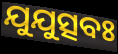
ଯୁଯୁତ୍ସବଃ